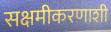
सक्षमीकरणाशी